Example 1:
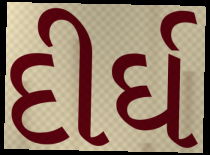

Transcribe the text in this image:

દીર્ઘ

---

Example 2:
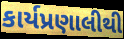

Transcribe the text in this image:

કાર્યપ્રણાલીથી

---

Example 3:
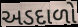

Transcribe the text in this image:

અડદાળો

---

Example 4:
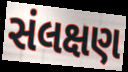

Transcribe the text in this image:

સંલક્ષણ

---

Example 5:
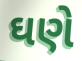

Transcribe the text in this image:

ઘણે